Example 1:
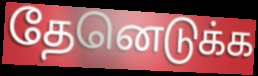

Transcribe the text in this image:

தேனெடுக்க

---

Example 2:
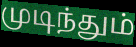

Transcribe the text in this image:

முடிந்தும்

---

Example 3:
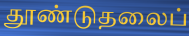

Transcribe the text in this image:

தூண்டுதலைப்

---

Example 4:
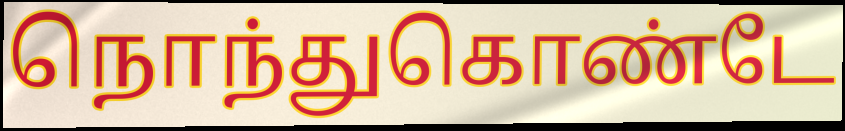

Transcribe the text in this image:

நொந்துகொண்டே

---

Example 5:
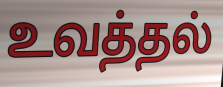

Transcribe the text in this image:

உவத்தல்